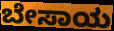
ಬೇಸಾಯ